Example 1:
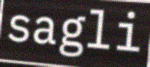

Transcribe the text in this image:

sagli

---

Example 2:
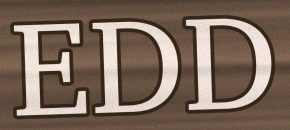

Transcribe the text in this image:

EDD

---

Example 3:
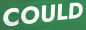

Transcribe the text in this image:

COULD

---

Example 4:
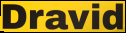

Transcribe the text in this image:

Dravid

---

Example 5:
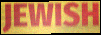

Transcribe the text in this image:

JEWISH